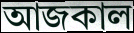
আজকাল